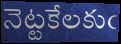
నెట్టకేలకుఁ